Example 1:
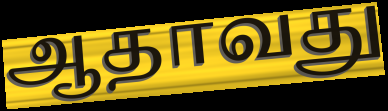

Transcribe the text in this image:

ஆதாவது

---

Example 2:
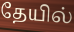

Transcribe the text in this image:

தேயில்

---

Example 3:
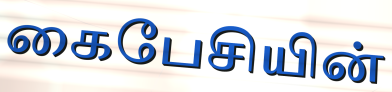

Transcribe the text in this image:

கைபேசியின்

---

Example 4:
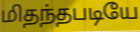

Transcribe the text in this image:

மிதந்தபடியே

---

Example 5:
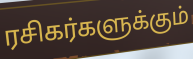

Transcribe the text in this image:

ரசிகர்களுக்கும்